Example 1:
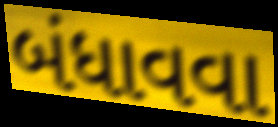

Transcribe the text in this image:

બંધાવવા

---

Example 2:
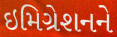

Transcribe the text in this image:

ઇમિગ્રેશનને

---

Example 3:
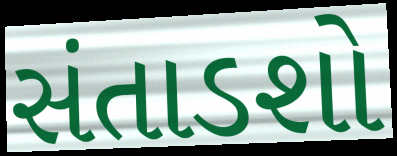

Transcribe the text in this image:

સંતાડશો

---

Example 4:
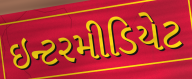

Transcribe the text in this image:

ઇન્ટરમીડિયેટ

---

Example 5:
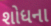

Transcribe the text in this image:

શોધના